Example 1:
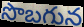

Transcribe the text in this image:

సొబగున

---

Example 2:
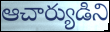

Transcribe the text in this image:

ఆచార్యుడిని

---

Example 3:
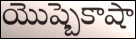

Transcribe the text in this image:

యొష్బెకాషా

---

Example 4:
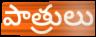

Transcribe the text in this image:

పాత్రులు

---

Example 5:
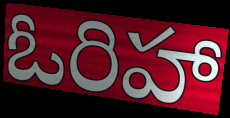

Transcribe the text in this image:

ఓరిహా